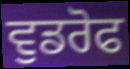
ਵੁਡਰੋਫ